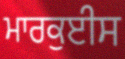
ਮਾਰਕੁਈਸ